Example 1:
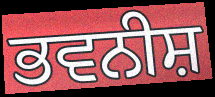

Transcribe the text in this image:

ਭਵਨੀਸ਼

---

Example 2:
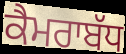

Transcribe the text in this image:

ਕੈਮਰਾਬੱਧ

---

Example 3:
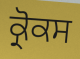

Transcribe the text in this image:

ਕ੍ਰੋਕਸ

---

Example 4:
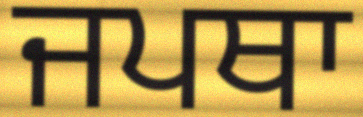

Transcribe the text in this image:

ਜਪਥਾ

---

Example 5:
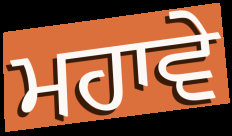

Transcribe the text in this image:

ਮਹਾਵੇ